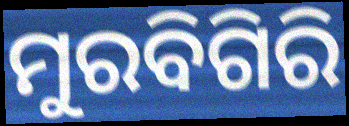
ମୁରବିଗିରି